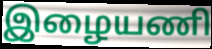
இழையணி